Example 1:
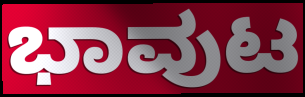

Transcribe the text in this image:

ಭಾವುಟ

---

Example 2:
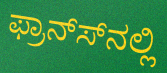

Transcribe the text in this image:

ಫ್ರಾನ್ಸ್‍ನಲ್ಲಿ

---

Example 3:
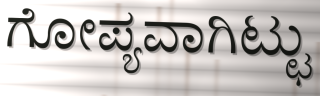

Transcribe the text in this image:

ಗೋಪ್ಯವಾಗಿಟ್ಟು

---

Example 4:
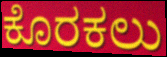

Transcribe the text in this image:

ಕೊರಕಲು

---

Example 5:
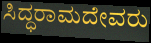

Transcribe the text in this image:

ಸಿದ್ಧರಾಮದೇವರು